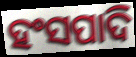
ହଂସପାଦି